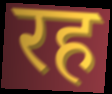
रह